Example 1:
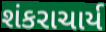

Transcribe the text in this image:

શંકરાચાર્ય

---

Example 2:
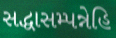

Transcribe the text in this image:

સદ્ધાસમ્પન્નેહિ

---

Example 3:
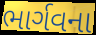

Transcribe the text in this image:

ભાર્ગવના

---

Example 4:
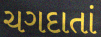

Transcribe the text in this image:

ચગદાતાં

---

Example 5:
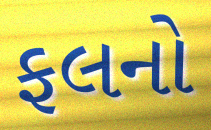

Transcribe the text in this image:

ફલનો